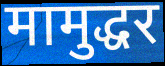
मामुद्धर